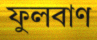
ফুলবাণ